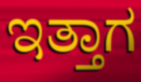
ಇತ್ತಾಗ